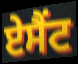
ਏਸੈਂਟ